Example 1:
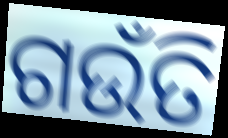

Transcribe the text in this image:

ଗଉଁତି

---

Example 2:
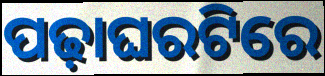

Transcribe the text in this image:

ପଢ଼ାଘରଟିରେ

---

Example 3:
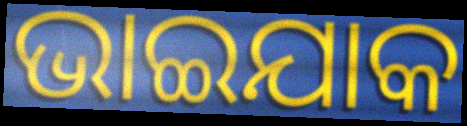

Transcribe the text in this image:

ଭାଇଯାକ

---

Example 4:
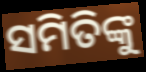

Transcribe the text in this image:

ସମିତିଙ୍କୁ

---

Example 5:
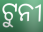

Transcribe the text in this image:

ଟୁନୀ